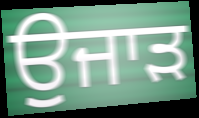
ਉੁਜਾੜ